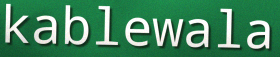
kablewala